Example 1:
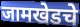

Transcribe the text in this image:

जामखेडचे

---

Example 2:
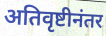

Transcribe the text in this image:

अतिवृष्टीनंतर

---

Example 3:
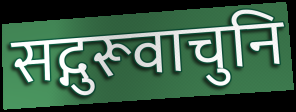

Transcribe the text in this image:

सद्गुरूवाचुनि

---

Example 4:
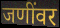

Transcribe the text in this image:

जणींवर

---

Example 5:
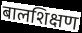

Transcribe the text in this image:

बालशिक्षण